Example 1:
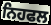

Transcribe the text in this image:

ਨਿਹਫਲ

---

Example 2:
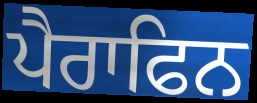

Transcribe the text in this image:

ਪੈਰਾਫਿਨ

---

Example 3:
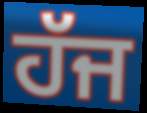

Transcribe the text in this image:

ਹੱਜ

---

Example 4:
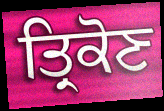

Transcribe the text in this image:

ਤ੍ਰਿਕੋਣ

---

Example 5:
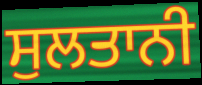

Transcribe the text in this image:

ਸੁਲਤਾਨੀ